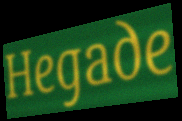
Hegade